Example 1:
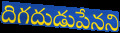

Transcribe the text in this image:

దిగదుడుపేనని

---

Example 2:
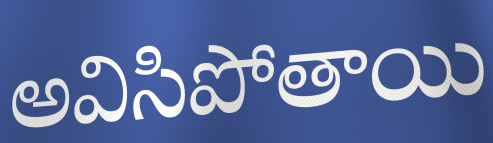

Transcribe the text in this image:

అవిసిపోతాయి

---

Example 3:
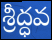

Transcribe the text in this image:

శ్రీద్ధవ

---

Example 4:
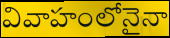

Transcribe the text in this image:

వివాహంలోనైనా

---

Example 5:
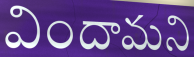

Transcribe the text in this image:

విందామని